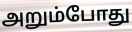
அறும்போது